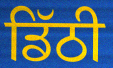
ਡਿੱਠੀ